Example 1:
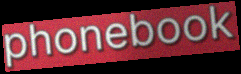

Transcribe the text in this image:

phonebook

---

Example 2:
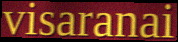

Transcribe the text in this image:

visaranai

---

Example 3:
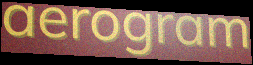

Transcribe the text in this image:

aerogram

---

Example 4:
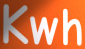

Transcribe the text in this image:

Kwh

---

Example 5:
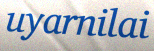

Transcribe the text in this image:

uyarnilai